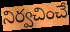
నిర్వచించే